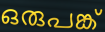
ഒരുപങ്ക്